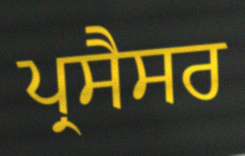
ਪ੍ਰਸੈਸਰ